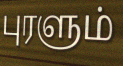
புரளும்